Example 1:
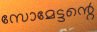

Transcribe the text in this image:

സോമേട്ടന്റെ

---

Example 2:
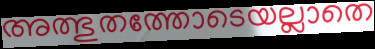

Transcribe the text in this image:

അത്ഭുതത്തോടെയല്ലാതെ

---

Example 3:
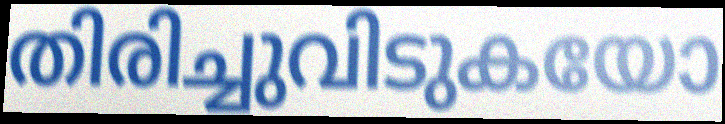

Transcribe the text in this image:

തിരിച്ചുവിടുകയോ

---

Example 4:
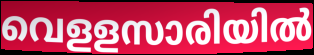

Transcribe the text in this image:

വെളളസാരിയിൽ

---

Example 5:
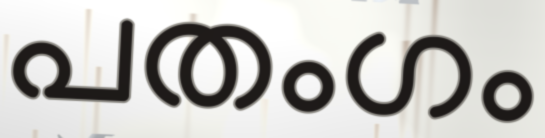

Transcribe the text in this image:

പതംഗം